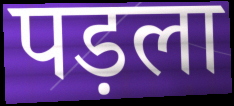
पड़ला